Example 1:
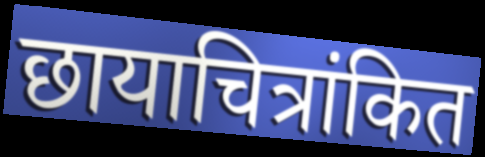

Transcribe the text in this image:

छायाचित्रांकित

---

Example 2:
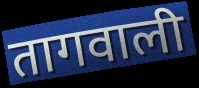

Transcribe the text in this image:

तागवाली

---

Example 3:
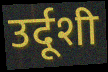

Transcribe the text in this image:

उर्दूशी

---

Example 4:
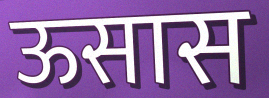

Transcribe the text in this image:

ऊसास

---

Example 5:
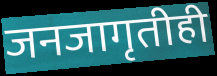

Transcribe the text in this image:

जनजागृतीही